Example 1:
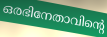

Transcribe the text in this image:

ഒരഭിനേതാവിന്റെ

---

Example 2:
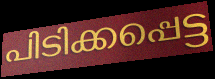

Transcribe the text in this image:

പിടിക്കപ്പെട്ട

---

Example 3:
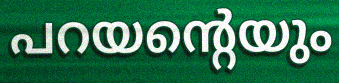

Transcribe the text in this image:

പറയന്റെയും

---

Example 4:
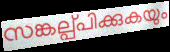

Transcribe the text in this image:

സങ്കല്പ്പിക്കുകയും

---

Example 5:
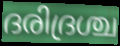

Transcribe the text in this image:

ദരിദ്രശ്ച